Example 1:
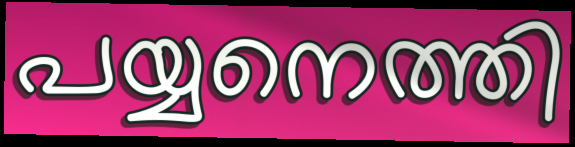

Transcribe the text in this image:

പയ്യനെത്തി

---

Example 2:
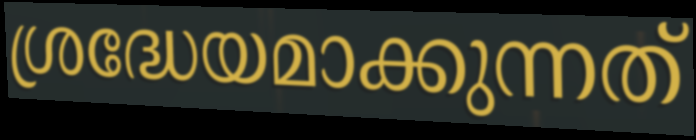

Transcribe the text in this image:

ശ്രദ്ധേയമാക്കുന്നത്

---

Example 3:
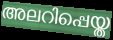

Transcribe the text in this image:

അലറിപ്പെയ്ത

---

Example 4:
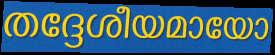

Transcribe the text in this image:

തദ്ദേശീയമായോ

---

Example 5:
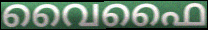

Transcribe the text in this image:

വൈഫൈ